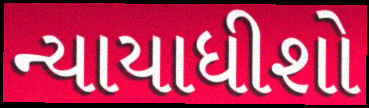
ન્યાયાધીશો